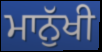
ਮਾਨੁੱਖੀ